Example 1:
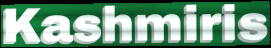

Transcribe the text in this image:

Kashmiris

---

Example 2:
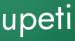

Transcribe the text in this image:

upeti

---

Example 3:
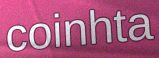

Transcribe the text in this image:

coinhta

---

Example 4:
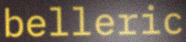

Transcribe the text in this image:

belleric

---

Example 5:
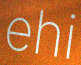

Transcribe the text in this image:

ehi